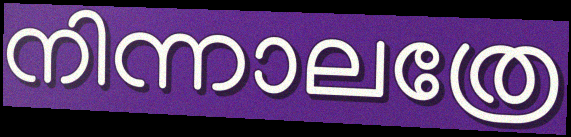
നിന്നാലത്രേ